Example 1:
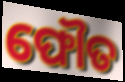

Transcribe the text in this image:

ଫୌତ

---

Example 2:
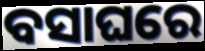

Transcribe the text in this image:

ବସାଘରେ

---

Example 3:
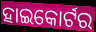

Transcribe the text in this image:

ହାଇକୋର୍ଟର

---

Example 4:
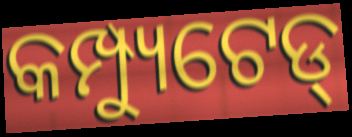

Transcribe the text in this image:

କମ୍ପ୍ୟୁଟେଡ୍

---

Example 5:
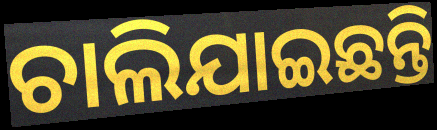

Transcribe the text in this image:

ଚାଲିଯାଇଛନ୍ତି